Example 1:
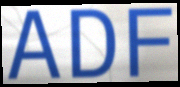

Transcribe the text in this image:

ADF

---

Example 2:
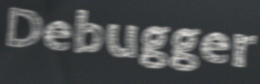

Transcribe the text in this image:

Debugger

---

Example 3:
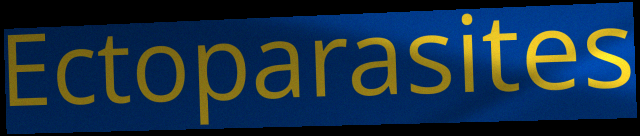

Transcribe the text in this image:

Ectoparasites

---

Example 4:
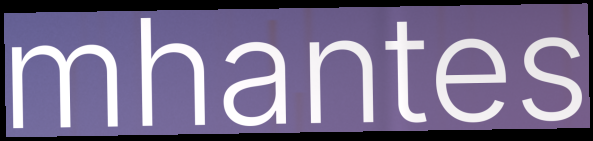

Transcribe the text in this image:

mhantes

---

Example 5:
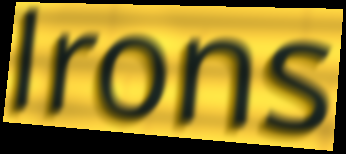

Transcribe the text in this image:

Irons